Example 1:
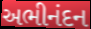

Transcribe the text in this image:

અભીનંદન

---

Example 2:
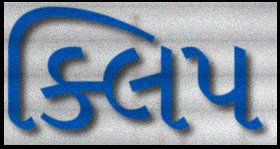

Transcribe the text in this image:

ક્લિપ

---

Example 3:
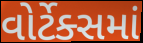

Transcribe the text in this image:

વોર્ટેક્સમાં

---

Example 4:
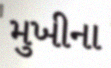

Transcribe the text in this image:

મુખીના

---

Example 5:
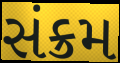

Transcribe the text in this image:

સંક્રમ